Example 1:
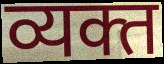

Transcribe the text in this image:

व्यक्‍त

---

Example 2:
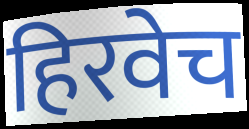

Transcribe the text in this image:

हिरवेच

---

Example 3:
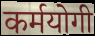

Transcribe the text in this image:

कर्मयोगी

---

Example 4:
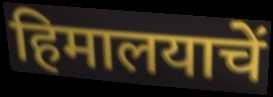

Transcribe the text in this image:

हिमालयाचें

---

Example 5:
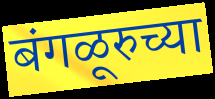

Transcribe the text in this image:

बंगळूरुच्या